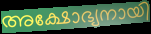
അക്ഷോഭ്യനായി